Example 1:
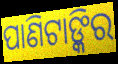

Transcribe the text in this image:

ପାଣିଟାଙ୍କିର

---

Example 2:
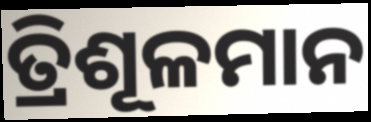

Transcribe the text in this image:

ତ୍ରିଶୂଳମାନ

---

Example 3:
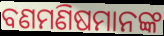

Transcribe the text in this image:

ବଣମଣିଷମାନଙ୍କ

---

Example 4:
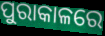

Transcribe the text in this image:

ପୁରାକାଳରେ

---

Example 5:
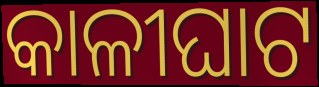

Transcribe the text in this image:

କାଳୀଘାଟ